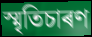
স্মৃতিচাৰণ